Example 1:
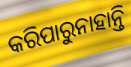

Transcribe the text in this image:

କରିପାରୁନାହାନ୍ତି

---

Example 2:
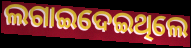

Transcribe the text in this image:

ଲଗାଇଦେଇଥିଲେ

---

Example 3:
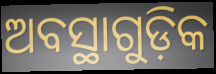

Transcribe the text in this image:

ଅବସ୍ଥାଗୁଡ଼ିକ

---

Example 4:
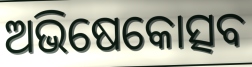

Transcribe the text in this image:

ଅଭିଷେକୋତ୍ସବ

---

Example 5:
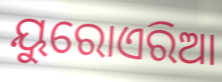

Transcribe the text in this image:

ୟୁରୋଏରିଆ